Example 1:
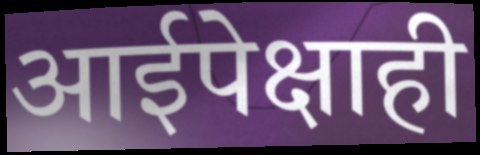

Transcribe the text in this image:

आईपेक्षाही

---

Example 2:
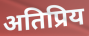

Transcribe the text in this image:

अतिप्रिय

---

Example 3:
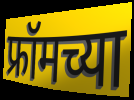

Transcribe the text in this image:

फ्रॉमच्या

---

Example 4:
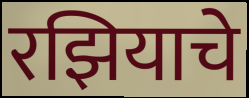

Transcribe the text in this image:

रझियाचे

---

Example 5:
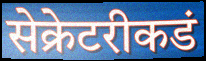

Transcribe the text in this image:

सेक्रेटरीकडं